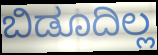
ಬಿಡೂದಿಲ್ಲ